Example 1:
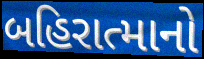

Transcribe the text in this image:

બહિરાત્માનો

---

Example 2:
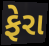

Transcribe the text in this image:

ફેરા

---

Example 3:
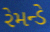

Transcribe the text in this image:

રેમન્ડે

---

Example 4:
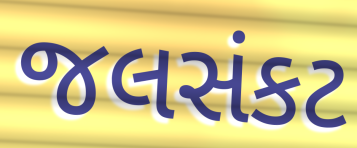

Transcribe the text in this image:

જલસંકટ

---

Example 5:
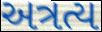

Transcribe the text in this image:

અત્રત્ય